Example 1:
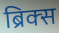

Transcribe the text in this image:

ब्रिक्‍स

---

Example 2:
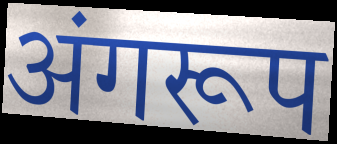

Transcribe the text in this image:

अंगरूप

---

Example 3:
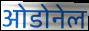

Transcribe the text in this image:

ओडोनेल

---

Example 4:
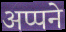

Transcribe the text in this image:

अप्पने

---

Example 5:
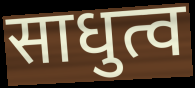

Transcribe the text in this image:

साधुत्व